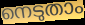
നെടുതാം